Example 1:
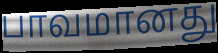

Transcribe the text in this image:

பாவமானது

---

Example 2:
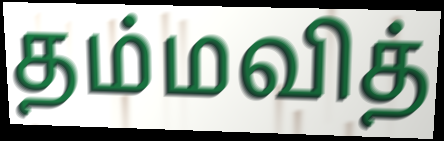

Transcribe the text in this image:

தம்மவித்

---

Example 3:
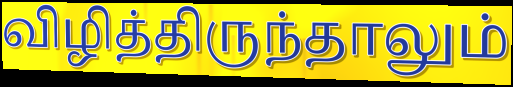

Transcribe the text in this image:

விழித்திருந்தாலும்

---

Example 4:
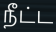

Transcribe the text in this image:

நீட்ட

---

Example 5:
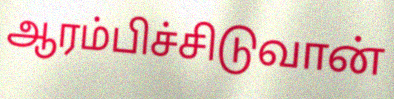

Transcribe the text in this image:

ஆரம்பிச்சிடுவான்